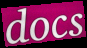
docs